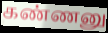
கண்ணனு